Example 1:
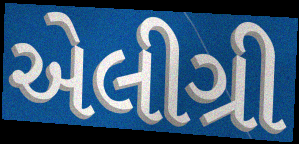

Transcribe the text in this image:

એલીગ્રી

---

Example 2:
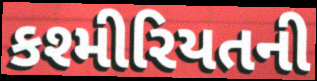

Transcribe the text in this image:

કશ્મીરિયતની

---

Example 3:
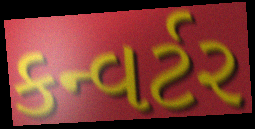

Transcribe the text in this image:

કન્વર્ટર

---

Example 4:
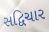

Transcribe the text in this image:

સદ્વિચાર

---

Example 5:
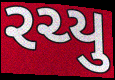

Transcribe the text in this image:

રચ્યુ